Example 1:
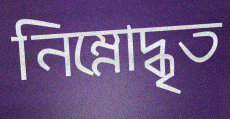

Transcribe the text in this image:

নিম্নোদ্ধৃত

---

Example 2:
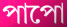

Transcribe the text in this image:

পাপো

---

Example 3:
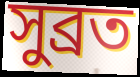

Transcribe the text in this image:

সুব্রত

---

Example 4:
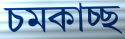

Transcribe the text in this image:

চমকাচ্ছ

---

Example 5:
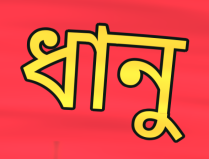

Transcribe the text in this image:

ধানু